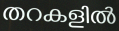
തറകളിൽ